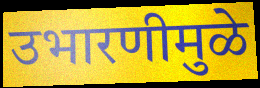
उभारणीमुळे